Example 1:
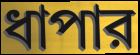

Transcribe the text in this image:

ধাপার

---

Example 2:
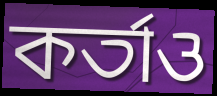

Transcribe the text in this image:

কর্তাও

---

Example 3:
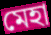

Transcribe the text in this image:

মেহা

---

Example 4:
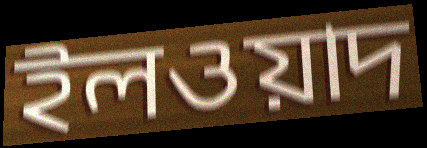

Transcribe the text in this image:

ইলওয়াদ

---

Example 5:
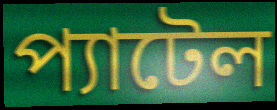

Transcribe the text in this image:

প্যাটেল